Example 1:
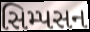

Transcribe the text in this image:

સિમ્પસન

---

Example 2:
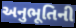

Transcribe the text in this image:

અનુભૂતિની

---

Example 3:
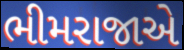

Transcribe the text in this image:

ભીમરાજાએ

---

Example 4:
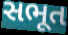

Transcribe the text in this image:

સભૂત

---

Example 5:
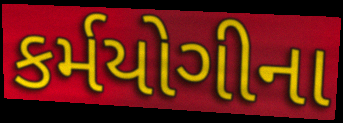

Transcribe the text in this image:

કર્મયોગીના